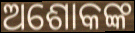
ଅଶୋକଙ୍କ